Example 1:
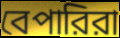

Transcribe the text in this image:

বেপারিরা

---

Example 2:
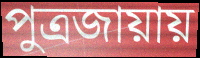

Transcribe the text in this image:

পুত্রজায়ায়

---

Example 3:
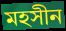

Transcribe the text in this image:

মহসীন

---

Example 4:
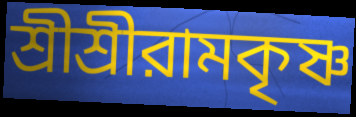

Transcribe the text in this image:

শ্রীশ্রীরামকৃষ্ণ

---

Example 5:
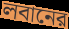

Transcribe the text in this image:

লবানের